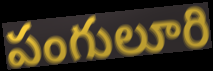
పంగులూరి